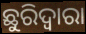
ଛୁରିଦ୍ୱାରା